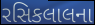
રસિકલાલના